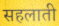
सहलाती